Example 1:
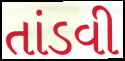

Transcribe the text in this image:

તાંડવી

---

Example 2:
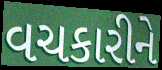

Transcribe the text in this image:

વચકારીને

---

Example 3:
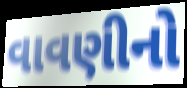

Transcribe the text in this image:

વાવણીનો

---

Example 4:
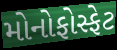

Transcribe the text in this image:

મોનોફોસ્ફેટ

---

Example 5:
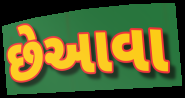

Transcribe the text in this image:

છેઆવા